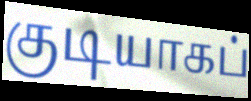
குடியாகப்